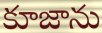
కూజాను